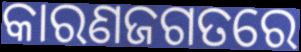
କାରଣଜଗତରେ